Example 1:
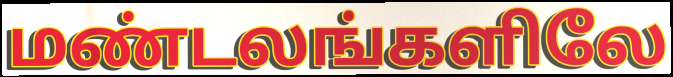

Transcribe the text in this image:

மண்டலங்களிலே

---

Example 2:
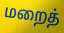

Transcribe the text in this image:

மறைத்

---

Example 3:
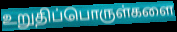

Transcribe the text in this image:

உறுதிப்பொருள்களை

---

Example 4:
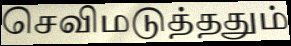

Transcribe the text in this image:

செவிமடுத்ததும்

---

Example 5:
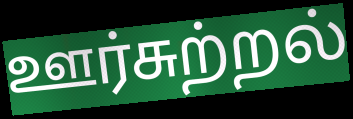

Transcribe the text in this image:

ஊர்சுற்றல்